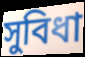
সুবিধা